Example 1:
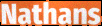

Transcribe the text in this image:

Nathans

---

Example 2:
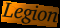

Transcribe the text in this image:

Legion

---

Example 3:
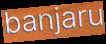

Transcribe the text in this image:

banjaru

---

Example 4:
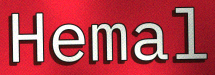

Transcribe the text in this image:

Hemal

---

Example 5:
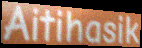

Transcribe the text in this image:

Aitihasik